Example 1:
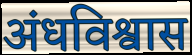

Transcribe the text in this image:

अंधविश्वास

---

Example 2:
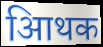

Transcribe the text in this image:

आिथक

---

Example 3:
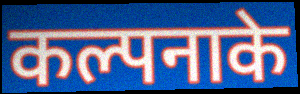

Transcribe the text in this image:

कल्पनाके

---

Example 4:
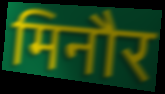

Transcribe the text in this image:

मिनौर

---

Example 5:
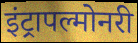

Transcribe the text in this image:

इंट्रापल्मोनरी